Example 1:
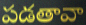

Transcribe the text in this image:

పడతావా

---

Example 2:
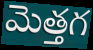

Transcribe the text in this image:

మెత్తగ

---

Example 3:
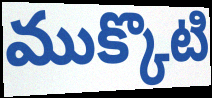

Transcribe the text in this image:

ముక్కొటి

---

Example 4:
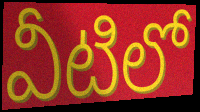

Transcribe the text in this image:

వీటిలో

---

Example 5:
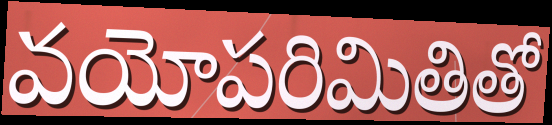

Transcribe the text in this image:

వయోపరిమితితో